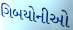
ગિબયોનીઓ